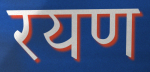
रयण